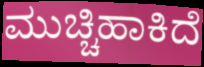
ಮುಚ್ಚಿಹಾಕಿದೆ